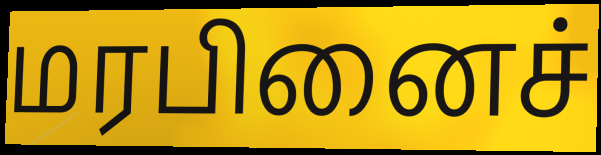
மரபினைச்